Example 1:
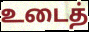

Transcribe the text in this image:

உடைத்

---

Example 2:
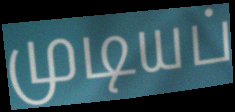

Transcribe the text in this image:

முடியப்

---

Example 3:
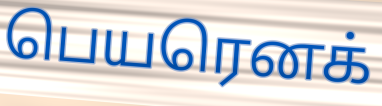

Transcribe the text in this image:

பெயரெனக்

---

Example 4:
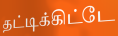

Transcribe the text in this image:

தட்டிக்கிட்டே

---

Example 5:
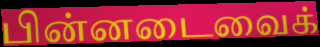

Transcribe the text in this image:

பின்னடைவைக்